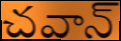
చవాన్